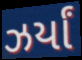
ઝર્યાં